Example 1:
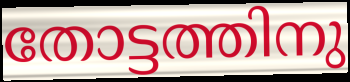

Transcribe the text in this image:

തോട്ടത്തിനു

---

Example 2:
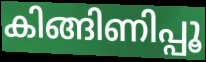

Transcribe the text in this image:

കിങ്ങിണിപ്പൂ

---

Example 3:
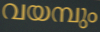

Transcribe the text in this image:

വയമ്പും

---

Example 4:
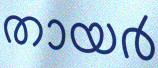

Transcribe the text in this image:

തായർ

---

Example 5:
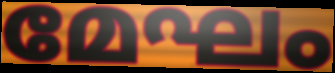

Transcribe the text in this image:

മേഘം